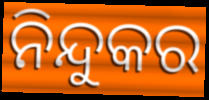
ନିନ୍ଦୁକର